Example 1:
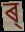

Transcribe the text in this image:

ৰ্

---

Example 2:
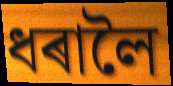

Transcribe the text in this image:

ধৰালৈ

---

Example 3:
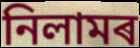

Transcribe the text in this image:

নিলামৰ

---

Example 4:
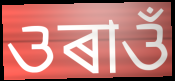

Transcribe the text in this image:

ওৰাওঁ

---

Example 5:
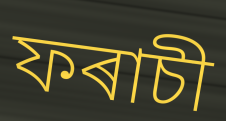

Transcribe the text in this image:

ফৰাচী